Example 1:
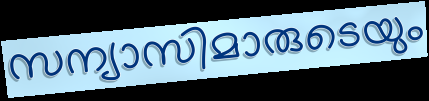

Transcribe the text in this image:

സന്യാസിമാരുടെയും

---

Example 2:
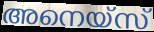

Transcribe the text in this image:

അനെയ്സ്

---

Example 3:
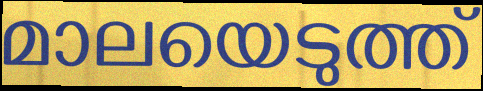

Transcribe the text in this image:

മാലയെടുത്ത്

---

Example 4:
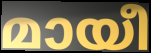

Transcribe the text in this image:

മായീ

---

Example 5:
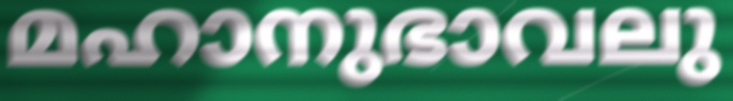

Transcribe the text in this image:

മഹാനുഭാവലു